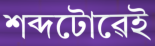
শব্দটোৱেই